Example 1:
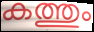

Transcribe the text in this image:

കത്തും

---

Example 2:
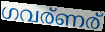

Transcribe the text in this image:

ഗവര്ണര്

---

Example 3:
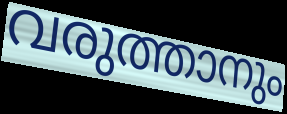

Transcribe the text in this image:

വരുത്താനും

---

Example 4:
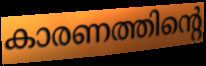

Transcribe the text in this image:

കാരണത്തിന്റെ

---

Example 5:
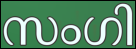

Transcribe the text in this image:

സംഗി